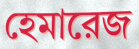
হেমারেজ